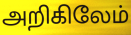
அறிகிலேம்